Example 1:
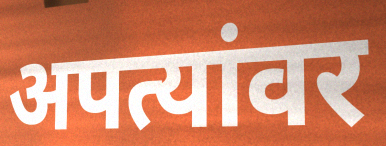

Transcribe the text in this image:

अपत्यांवर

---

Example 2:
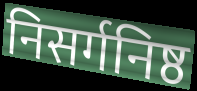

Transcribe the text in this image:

निसर्गनिष्ठ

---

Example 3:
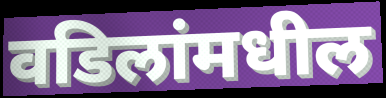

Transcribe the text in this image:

वडिलांमधील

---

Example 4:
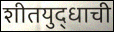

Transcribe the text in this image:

शीतयुद्धाची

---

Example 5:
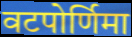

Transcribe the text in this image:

वटपोर्णिमा